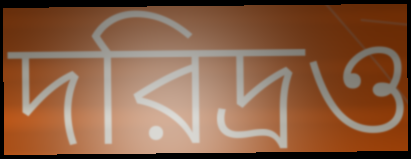
দরিদ্রও